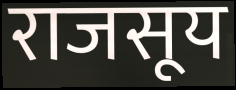
राजसूय